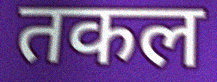
तकल